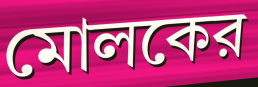
মোলকের